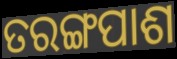
ତରଙ୍ଗପାଶ